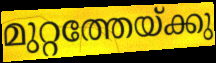
മുറ്റത്തേയ്ക്കു